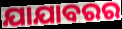
ଯାଯାବରର